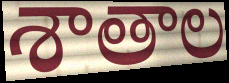
శాతాల